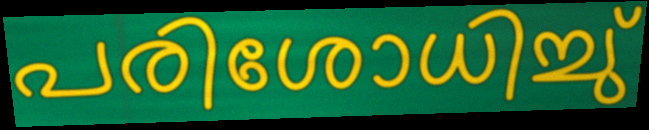
പരിശോധിച്ചു്